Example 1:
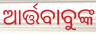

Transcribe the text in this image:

ଆର୍ତ୍ତବାବୁଙ୍କ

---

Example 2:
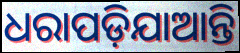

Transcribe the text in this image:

ଧରାପଡ଼ିଯାଆନ୍ତି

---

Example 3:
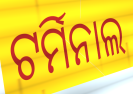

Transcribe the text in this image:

ଟର୍ମିନାଲ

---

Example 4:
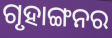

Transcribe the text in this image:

ଗୃହାଙ୍ଗନର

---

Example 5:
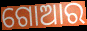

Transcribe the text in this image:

ଗୋଆର